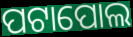
ପଟାପୋଲ